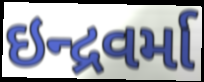
ઇન્દ્રવર્મા